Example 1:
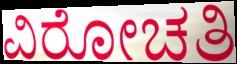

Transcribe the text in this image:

ವಿರೋಚತಿ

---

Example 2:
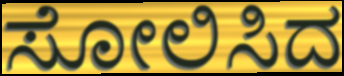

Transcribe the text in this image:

ಸೋಲಿಸಿದ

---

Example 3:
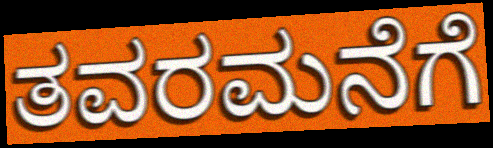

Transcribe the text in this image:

ತವರಮನೆಗೆ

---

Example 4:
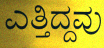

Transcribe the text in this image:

ಎತ್ತಿದ್ದವು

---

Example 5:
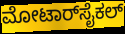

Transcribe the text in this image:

ಮೋಟಾರ್‌ಸೈಕಲ್